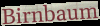
Birnbaum